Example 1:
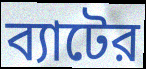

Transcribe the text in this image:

ব্যাটের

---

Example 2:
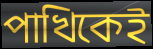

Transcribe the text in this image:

পাখিকেই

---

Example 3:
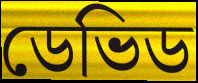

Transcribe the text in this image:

ডেভিড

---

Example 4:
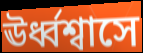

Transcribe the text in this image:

ঊর্ধ্বশ্বাসে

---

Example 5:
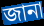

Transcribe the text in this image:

জানা